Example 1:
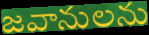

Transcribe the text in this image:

జవానులను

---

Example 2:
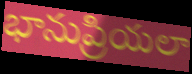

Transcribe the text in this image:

భానుప్రియలా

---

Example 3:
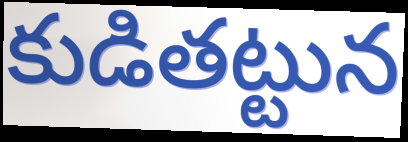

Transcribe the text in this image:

కుడితట్టున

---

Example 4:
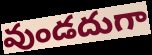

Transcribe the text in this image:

వుండదుగా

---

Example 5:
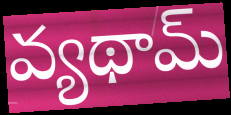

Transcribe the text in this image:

వ్యథామ్